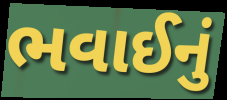
ભવાઈનું